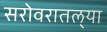
सरोवरातल्या